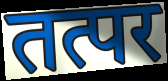
तत्पर